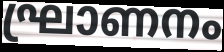
ഘ്രാണനം